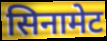
सिनामेट